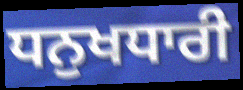
ਧਨੁਖਧਾਰੀ